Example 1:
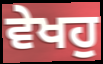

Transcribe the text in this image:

ਵੇਖਹੁ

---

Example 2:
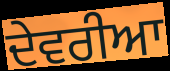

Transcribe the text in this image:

ਦੇਵਰੀਆ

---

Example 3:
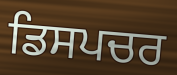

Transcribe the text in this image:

ਡਿਸਪਚਰ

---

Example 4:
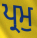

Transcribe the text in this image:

ਪ੍ਰਮੁ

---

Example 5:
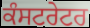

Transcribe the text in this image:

ਕੰਸਟਰੇਟਰ